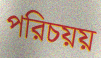
পরিচয়য়